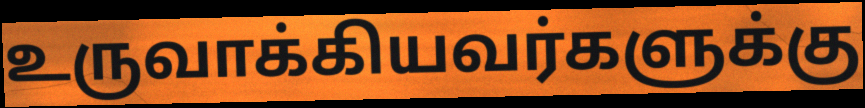
உருவாக்கியவர்களுக்கு